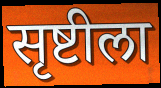
सृष्टीला